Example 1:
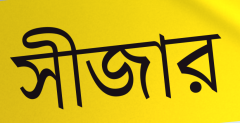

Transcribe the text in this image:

সীজার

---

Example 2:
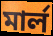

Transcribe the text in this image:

মার্ল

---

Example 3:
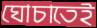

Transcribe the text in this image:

ঘোচাতেই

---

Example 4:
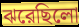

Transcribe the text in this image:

ঝরেছিলো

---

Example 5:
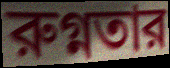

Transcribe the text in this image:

রুগ্নতার